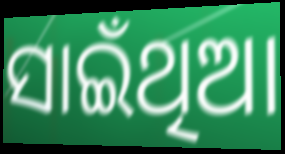
ସାଇଁଥିଆ